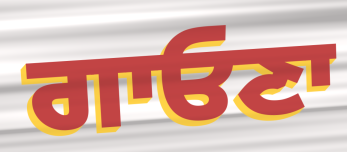
ਗਾਓਣਾ